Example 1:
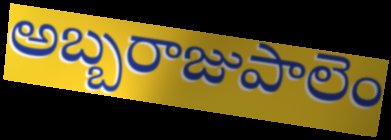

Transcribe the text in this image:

అబ్బరాజుపాలెం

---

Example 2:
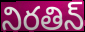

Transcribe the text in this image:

నిరతిన్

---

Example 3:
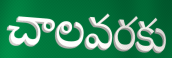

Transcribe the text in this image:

చాలవరకు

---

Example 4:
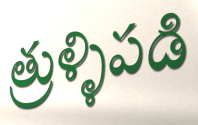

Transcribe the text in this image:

త్రుళ్ళిపడి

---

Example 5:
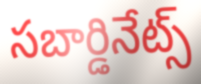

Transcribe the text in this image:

సబార్డినేట్స్